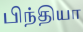
பிந்தியா